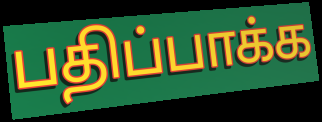
பதிப்பாக்க